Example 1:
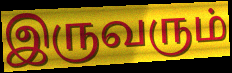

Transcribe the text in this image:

இருவரும்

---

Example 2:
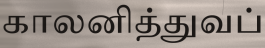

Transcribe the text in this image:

காலனித்துவப்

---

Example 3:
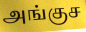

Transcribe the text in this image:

அங்குச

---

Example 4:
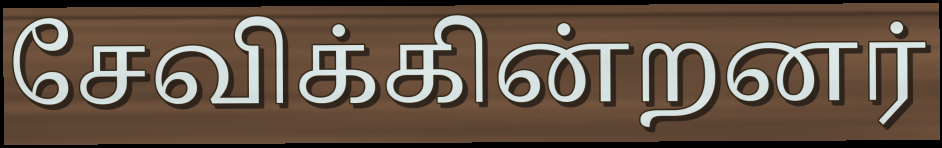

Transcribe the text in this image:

சேவிக்கின்றனர்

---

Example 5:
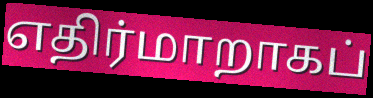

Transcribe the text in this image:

எதிர்மாறாகப்